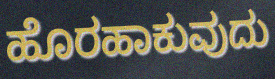
ಹೊರಹಾಕುವುದು